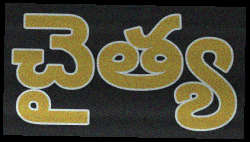
చైత్య